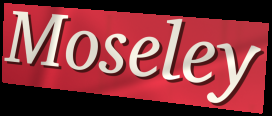
Moseley